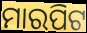
ମାରପିଟ